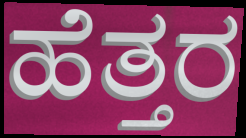
ಹೆತ್ತರ